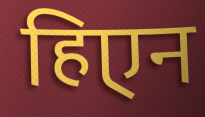
हिएन